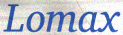
Lomax